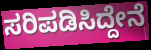
ಸರಿಪಡಿಸಿದ್ದೇನೆ